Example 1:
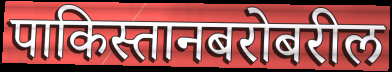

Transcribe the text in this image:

पाकिस्तानबरोबरील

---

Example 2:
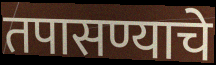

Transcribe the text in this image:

तपासण्याचे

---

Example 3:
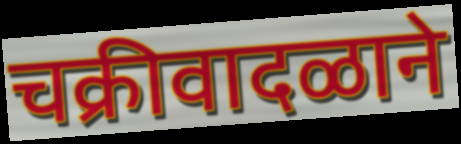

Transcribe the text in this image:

चक्रीवादळाने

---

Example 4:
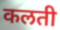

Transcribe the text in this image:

कलती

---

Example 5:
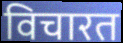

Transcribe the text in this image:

विचारत